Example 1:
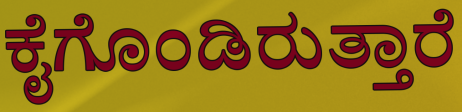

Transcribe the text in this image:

ಕೈಗೊಂಡಿರುತ್ತಾರೆ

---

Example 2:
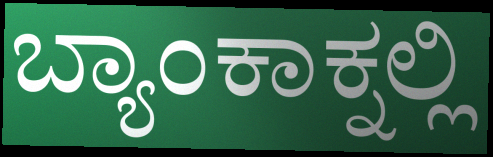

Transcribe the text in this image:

ಬ್ಯಾಂಕಾಕ್ನಲ್ಲಿ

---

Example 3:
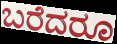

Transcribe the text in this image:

ಬರೆದರೂ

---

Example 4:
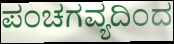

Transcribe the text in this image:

ಪಂಚಗವ್ಯದಿಂದ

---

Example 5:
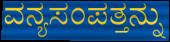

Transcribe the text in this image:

ವನ್ಯಸಂಪತ್ತನ್ನು